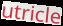
utricle